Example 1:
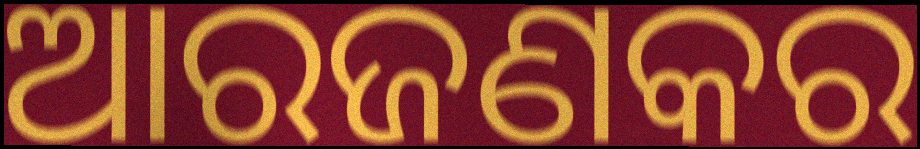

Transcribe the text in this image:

ଆରଜଣକର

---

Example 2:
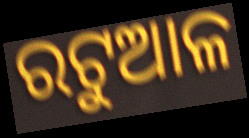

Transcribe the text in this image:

ରଟୁଆଳ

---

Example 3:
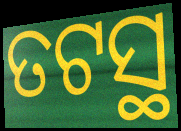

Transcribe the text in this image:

ତଟସ୍ଥ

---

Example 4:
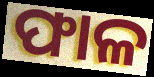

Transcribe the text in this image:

ଫାଳ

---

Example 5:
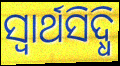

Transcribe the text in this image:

ସ୍ୱାର୍ଥସିଦ୍ଧି